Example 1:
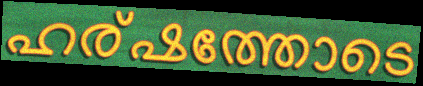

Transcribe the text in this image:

ഹര്ഷത്തോടെ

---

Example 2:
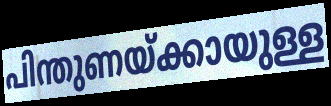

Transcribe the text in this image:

പിന്തുണയ്ക്കായുള്ള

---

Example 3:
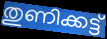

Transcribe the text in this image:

തുണിക്കട്ട്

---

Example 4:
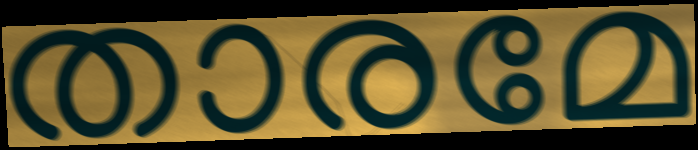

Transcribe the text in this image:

താരമേ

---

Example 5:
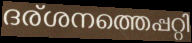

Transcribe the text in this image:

ദര്ശനത്തെപ്പറ്റി